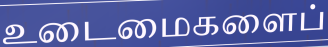
உடைமைகளைப்